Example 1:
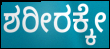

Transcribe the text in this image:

ಶರೀರಕ್ಕೇ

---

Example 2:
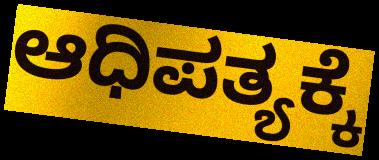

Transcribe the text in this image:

ಆಧಿಪತ್ಯಕ್ಕೆ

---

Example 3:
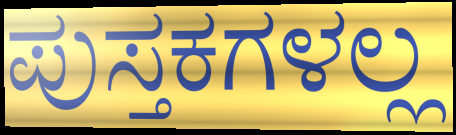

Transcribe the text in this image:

ಪುಸ್ತಕಗಳಲ್ಲ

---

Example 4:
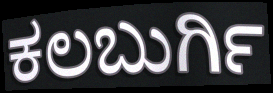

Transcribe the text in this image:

ಕಲಬುರ್ಗಿ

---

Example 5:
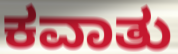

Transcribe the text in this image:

ಕವಾತು